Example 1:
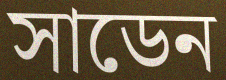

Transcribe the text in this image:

সাডেন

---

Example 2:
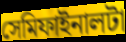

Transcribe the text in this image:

সেমিফাইনালটা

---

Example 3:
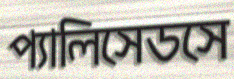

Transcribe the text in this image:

প্যালিসেডসে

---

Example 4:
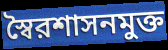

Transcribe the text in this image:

স্বৈরশাসনমুক্ত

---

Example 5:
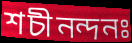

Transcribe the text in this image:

শচীনন্দনঃ